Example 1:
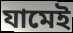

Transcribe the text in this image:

যামেই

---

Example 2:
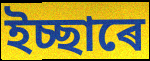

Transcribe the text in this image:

ইচ্ছাৰে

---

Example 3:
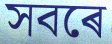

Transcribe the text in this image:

সবৰে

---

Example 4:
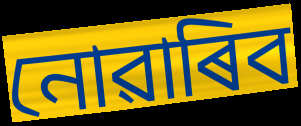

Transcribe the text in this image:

নোৱাৰিব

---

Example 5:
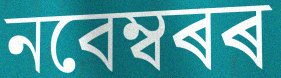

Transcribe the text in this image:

নবেম্বৰৰ